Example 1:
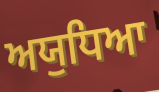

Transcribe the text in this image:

ਅਯੁਧਿਆ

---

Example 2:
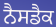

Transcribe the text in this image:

ਨੈਸਡੈਕ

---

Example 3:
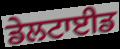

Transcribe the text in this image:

ਡੇਲਟਾਈਡ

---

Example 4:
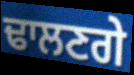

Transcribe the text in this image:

ਢਾਲਣਗੇ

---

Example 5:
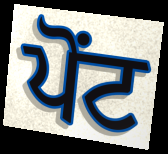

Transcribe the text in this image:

ਪੋਂਟ